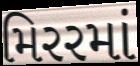
મિરરમાં